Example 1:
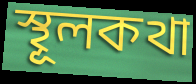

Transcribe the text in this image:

স্থূলকথা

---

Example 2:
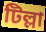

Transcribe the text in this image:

টিল্লা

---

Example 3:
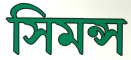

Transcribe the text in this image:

সিমন্স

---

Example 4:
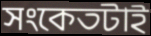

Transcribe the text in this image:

সংকেতটাই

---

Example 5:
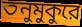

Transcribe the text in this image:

তনুমুকুরে